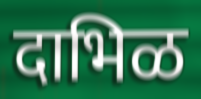
दाभिळ